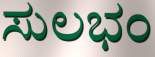
ಸುಲಭಂ